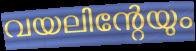
വയലിന്റേയും